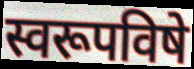
स्वरूपविषे